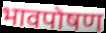
भावपोषण